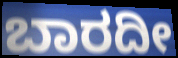
ಬಾರದೀ